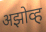
अझोव्ह